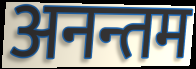
अनन्तम